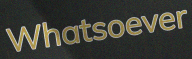
Whatsoever